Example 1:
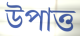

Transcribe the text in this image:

উপাত্ত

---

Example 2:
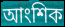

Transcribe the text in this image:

আংশিক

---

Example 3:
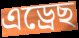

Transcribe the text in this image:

এড্ৰেছ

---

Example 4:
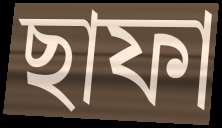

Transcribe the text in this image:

ছাফা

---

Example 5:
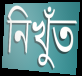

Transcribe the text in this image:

নিখুঁত